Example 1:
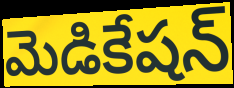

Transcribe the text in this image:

మెడికేషన్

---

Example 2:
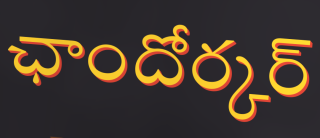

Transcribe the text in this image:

ఛాందోర్కర్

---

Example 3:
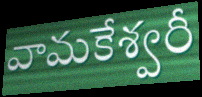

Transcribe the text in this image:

వామకేశ్వరీ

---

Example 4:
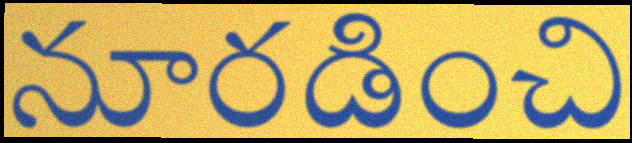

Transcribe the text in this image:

నూరడించి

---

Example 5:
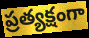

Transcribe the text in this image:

ప్రత్యక్షంగా